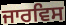
ਜਾਰਵਿਸ